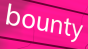
bounty